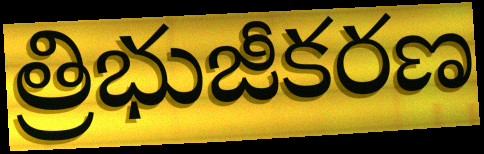
త్రిభుజీకరణ